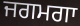
ਜਗਮਗਾ